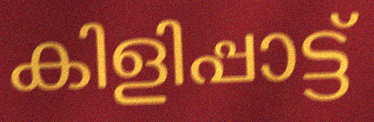
കിളിപ്പാട്ട്